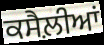
ਕਸੈਲ਼ੀਆਂ